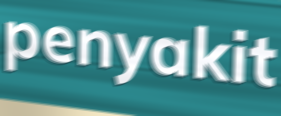
penyakit